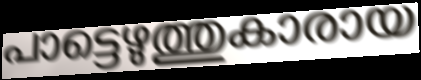
പാട്ടെഴുത്തുകാരായ